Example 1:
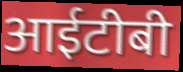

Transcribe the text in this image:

आईटीबी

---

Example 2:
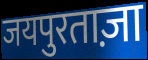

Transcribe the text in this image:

जयपुरताज़ा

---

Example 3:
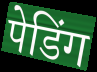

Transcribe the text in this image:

पेडिंग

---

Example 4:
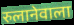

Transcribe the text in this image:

रुलानेवाला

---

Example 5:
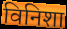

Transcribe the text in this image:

विनिशा